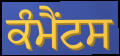
ਕੰਮੈਂਟਸ